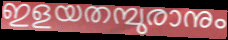
ഇളയതമ്പുരാനും